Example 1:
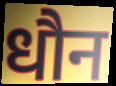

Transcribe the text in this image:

धौन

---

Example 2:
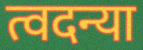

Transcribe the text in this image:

त्वदन्या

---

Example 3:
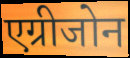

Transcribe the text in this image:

एग्रीजोन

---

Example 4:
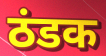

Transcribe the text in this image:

ठंडक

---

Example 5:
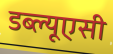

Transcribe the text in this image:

डब्ल्यूएसी